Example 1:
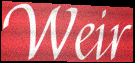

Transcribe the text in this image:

Weir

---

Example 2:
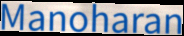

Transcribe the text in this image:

Manoharan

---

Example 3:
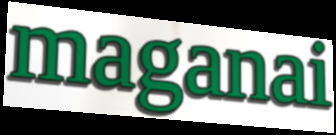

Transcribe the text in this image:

maganai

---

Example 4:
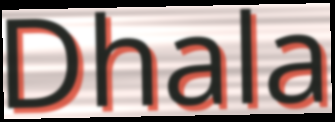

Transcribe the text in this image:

Dhala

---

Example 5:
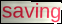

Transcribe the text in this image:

saving